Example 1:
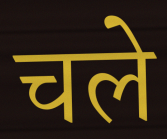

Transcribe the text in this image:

चले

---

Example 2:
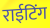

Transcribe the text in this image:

राईटिंग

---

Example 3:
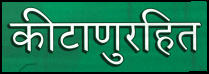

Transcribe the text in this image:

कीटाणुरहित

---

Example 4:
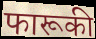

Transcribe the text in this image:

फारूकी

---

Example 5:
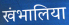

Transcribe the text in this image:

खंभालिया